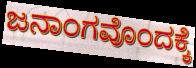
ಜನಾಂಗವೊಂದಕ್ಕೆ